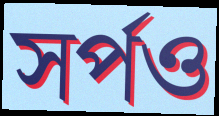
সর্পও